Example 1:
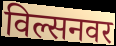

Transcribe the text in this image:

विल्सनवर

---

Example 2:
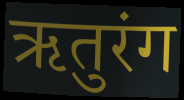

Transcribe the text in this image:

ऋतुरंग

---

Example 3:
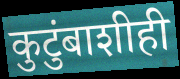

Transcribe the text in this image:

कुटुंबाशीही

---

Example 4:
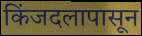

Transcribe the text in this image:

किंजदलापासून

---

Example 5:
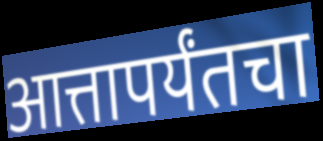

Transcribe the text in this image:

आत्तापर्यंतचा